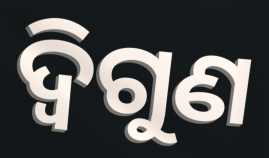
ଦ୍ୱିଗୁଣ